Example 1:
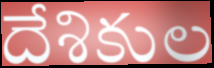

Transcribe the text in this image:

దేశికుల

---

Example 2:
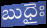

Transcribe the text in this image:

బుధైః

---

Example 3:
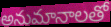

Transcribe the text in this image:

అనుమానాలతో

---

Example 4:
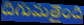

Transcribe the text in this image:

దిగుమతైంది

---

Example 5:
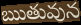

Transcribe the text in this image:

ఋతువున